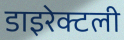
डाइरेक्टली